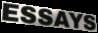
ESSAYS